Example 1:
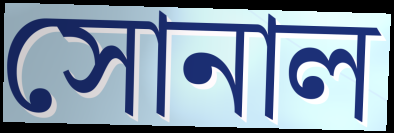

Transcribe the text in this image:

সোনাল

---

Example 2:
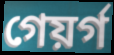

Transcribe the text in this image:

গেয়ৰ্গ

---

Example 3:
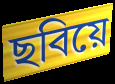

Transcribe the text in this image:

ছবিয়ে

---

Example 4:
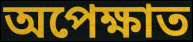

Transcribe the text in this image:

অপেক্ষাত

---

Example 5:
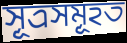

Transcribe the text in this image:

সূত্ৰসমূহত